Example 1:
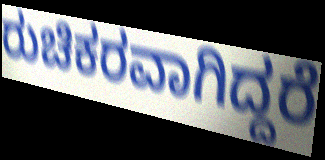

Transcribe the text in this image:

ರುಚಿಕರವಾಗಿದ್ದರೆ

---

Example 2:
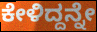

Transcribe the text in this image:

ಕೇಳಿದ್ದನ್ನೇ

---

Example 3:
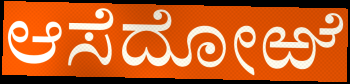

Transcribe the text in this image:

ಆಸೆದೋಱೆ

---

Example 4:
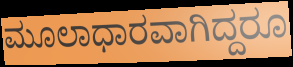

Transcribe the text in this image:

ಮೂಲಾಧಾರವಾಗಿದ್ದರೂ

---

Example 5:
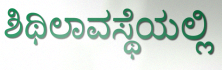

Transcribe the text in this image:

ಶಿಥಿಲಾವಸ್ಥೆಯಲ್ಲಿ